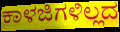
ಕಾಳಜಿಗಳಿಲ್ಲದ